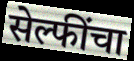
सेल्फींचा